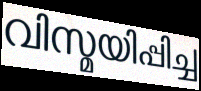
വിസ്മയിപ്പിച്ച